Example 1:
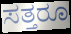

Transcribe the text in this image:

ಸತ್ತರೂ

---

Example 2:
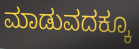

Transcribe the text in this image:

ಮಾಡುವದಕ್ಕೂ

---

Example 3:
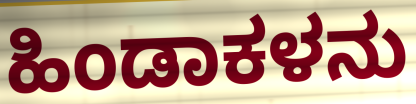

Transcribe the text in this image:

ಹಿಂಡಾಕಳನು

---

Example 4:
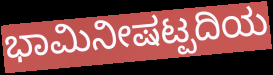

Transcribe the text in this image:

ಭಾಮಿನೀಷಟ್ಪದಿಯ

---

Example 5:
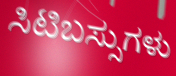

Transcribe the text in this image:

ಸಿಟಿಬಸ್ಸುಗಳು